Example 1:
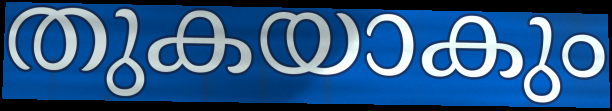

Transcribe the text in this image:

തുകയാകും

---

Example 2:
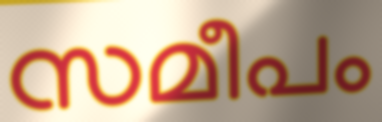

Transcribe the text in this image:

സമീപം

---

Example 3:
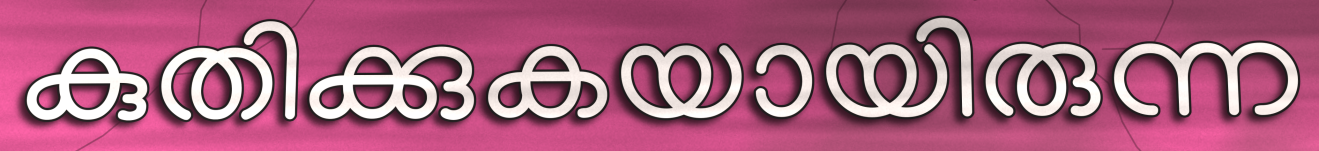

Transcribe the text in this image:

കുതിക്കുകയായിരുന്ന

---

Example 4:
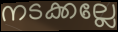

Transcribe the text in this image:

നടക്കല്ലേ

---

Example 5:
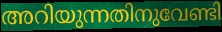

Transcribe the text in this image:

അറിയുന്നതിനുവേണ്ടി